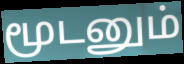
மூடனும்